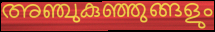
അഞ്ചുകുഞ്ഞുങ്ങളും